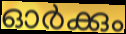
ഓർക്കും